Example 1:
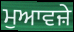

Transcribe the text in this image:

ਮੁਆਵਜ਼ੇ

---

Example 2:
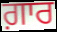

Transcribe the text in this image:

ਗ਼ਾਰ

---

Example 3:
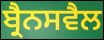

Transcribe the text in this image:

ਬ੍ਰੈਨਸਵੈਲ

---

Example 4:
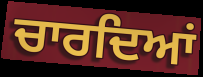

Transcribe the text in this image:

ਚਾਰਦਿਆਂ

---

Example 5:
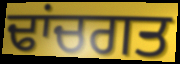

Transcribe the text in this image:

ਢਾਂਚਗਤ